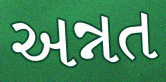
અન્નત